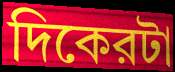
দিকেরটা